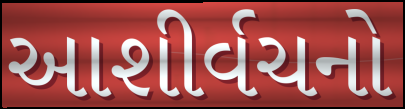
આશીર્વચનો